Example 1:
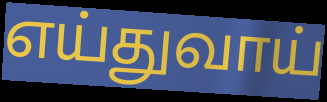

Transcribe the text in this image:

எய்துவாய்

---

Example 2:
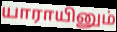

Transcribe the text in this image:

யாராயினும்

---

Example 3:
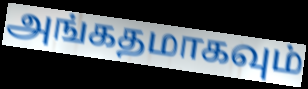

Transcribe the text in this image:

அங்கதமாகவும்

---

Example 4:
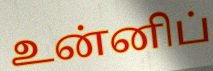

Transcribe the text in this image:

உன்னிப்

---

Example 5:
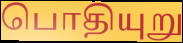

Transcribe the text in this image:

பொதியுறு